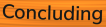
Concluding